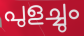
പുളച്ചും